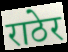
राठेर